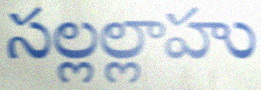
సల్లల్లాహు